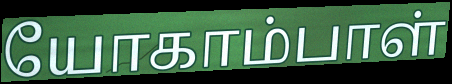
யோகாம்பாள்